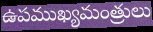
ఉపముఖ్యమంత్రులు